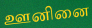
ஊனினை